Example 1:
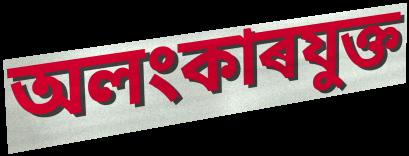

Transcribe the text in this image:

অলংকাৰযুক্ত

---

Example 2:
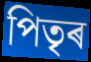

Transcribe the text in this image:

পিতৃৰ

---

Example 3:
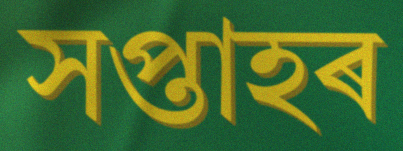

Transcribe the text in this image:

সপ্তাহৰ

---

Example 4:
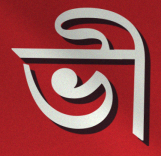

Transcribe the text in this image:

ভী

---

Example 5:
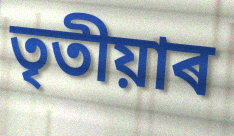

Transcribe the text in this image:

তৃতীয়াৰ